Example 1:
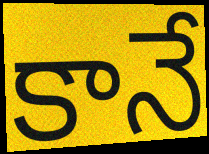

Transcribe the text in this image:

కానే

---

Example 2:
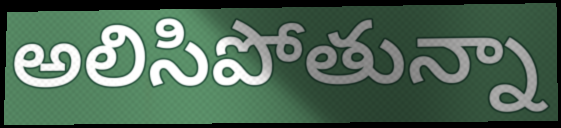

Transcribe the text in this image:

అలిసిపోతున్నా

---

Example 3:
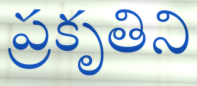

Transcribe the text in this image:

ప్రకృతిని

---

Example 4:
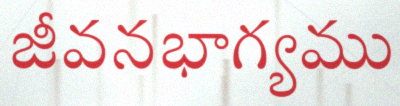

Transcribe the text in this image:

జీవనభాగ్యము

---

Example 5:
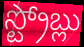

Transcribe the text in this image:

స్ట్రోబ్లు